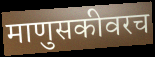
माणुसकीवरच